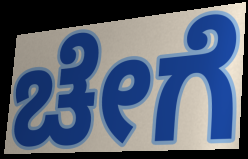
ಚೇಗೆ